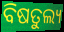
ବିଷତୁଲ୍ୟ